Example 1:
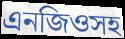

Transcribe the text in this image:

এনজিওসহ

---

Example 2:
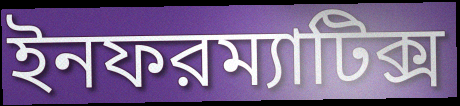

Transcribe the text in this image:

ইনফরম্যাটিক্স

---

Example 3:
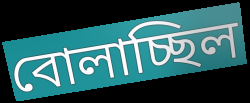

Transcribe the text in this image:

বোলাচ্ছিল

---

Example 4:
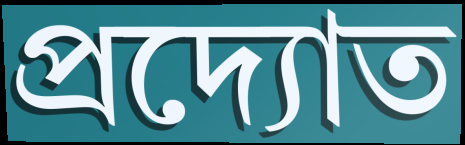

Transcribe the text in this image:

প্রদ্যোত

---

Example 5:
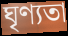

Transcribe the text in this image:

ঘৃণ্যতা